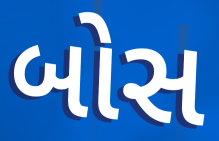
બોસ